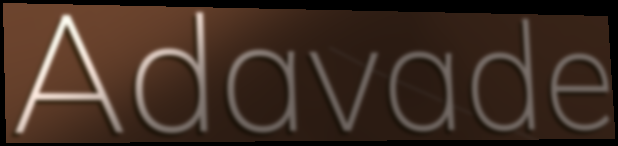
Adavade